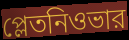
প্লেতনিওভার